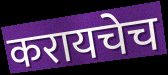
करायचेच